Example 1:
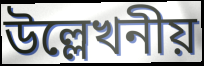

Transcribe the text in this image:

উল্লেখনীয়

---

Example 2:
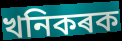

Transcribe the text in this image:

খনিকৰক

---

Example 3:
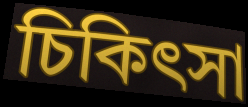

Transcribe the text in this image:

চিকিৎসা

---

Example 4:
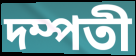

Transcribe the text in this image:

দম্পতী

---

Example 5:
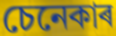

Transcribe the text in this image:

চেনেকাৰ